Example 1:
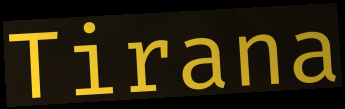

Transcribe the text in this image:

Tirana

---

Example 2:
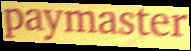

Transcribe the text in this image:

paymaster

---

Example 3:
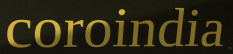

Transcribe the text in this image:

coroindia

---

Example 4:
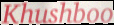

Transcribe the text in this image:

Khushboo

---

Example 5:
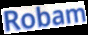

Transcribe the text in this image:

Robam